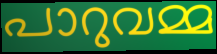
പാറുവമ്മ